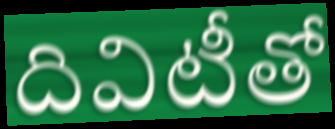
దివిటీతో